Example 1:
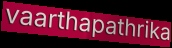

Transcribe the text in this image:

vaarthapathrika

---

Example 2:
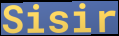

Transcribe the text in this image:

Sisir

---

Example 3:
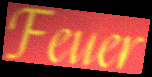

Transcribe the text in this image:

Feuer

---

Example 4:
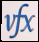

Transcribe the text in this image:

vfx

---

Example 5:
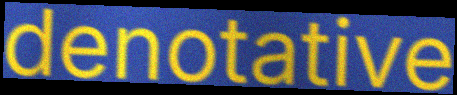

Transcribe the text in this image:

denotative